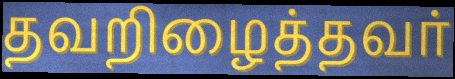
தவறிழைத்தவர்